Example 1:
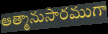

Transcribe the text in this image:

ఆత్మానుసారముగా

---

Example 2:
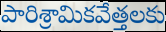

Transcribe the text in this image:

పారిశ్రామికవేత్తలకు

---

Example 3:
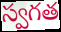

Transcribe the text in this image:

స్వగత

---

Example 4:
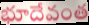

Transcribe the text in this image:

భూదేవంత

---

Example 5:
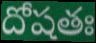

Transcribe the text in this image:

దోషతః